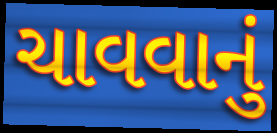
ચાવવાનું